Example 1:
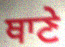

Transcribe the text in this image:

ਥਾਣੇ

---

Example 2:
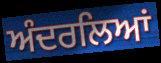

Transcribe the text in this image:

ਅੰਦਰਲਿਆਂ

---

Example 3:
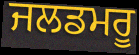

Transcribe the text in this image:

ਜਲਡਮਰੂ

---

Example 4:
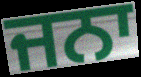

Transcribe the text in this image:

ਜਨਾ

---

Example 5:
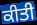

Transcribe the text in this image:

ਕੀਤੀ